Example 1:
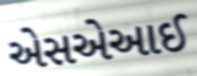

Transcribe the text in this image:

એસએઆઈ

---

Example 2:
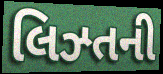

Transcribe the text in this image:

લિઝ્તની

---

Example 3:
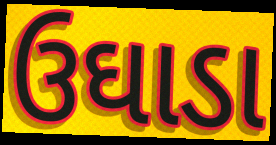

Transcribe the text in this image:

ઉઘાડા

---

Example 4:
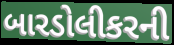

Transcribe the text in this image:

બારડોલીકરની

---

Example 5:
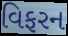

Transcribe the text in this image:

વિફરન